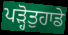
ਪੜ੍ਹੋਤੁਹਾਡੇ